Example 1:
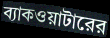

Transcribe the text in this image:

ব্যাকওয়াটারের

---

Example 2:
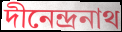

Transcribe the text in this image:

দীনেন্দ্রনাথ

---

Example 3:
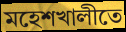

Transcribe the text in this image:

মহেশখালীতে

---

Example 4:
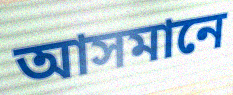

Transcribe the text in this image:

আসমানে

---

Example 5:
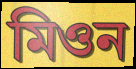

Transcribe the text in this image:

মিওন